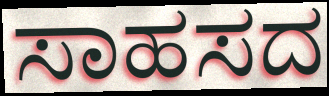
ಸಾಹಸದ